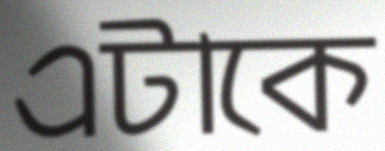
এটাকে